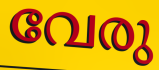
വേരു